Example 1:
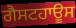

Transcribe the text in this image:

ਗੈਸਟਹਾਊਸ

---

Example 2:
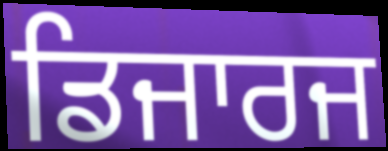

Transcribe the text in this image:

ਡਿਜਾਰਜ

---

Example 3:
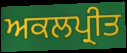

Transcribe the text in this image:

ਅਕਲਪ੍ਰੀਤ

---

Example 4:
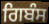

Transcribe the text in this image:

ਗਿਬੰਸ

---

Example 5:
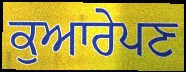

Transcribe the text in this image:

ਕੁਆਰੇਪਣ